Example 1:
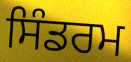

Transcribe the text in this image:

ਸਿੰਡਰਮ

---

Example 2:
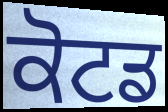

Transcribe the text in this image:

ਕੋਟਡ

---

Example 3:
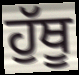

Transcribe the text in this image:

ਹੁੱਥੂ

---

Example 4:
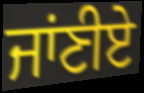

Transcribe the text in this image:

ਜਾਂਣੀਏ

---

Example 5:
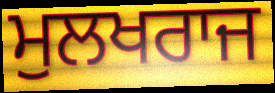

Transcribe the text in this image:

ਮੁਲਖਰਾਜ